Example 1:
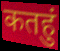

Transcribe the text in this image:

कतहुं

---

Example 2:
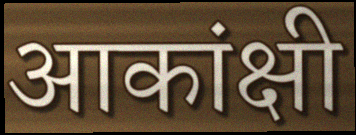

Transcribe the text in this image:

आकांक्षी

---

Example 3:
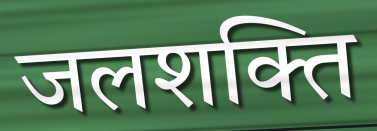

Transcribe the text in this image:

जलशक्ति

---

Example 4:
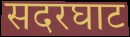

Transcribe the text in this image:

सदरघाट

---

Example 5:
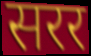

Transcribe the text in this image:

सरर